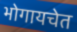
भोगायचेत